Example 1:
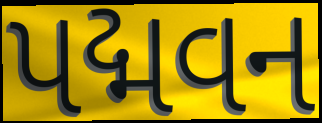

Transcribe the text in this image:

પદ્મવન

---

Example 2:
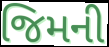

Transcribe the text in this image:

જિમની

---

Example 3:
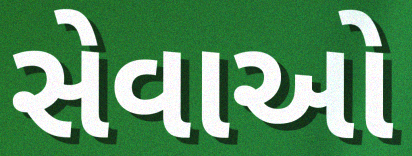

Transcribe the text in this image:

સેવાઓ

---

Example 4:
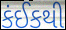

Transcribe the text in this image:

કંઈકથી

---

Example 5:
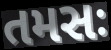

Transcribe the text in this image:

તમસઃ